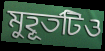
মুহূর্তটিও